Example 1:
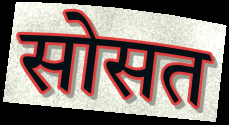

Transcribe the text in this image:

सोसत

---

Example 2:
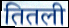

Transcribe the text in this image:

तितली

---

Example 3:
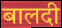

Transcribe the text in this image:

बालदी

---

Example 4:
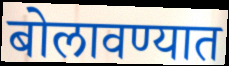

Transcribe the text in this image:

बोलावण्यात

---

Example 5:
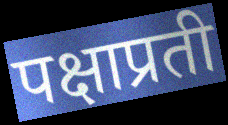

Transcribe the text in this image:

पक्षाप्रती